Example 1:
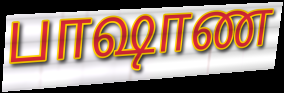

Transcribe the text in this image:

பாஷாண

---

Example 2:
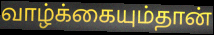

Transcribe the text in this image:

வாழ்க்கையும்தான்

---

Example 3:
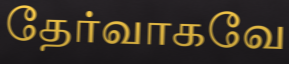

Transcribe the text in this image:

தேர்வாகவே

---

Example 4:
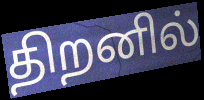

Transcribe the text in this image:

திறனில்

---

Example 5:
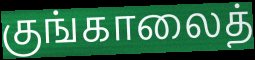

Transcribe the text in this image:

குங்காலைத்